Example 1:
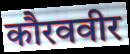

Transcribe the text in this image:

कौरववीर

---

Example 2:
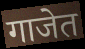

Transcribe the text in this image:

गाजेत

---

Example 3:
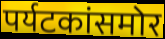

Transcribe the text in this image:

पर्यटकांसमोर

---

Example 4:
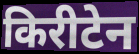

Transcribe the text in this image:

किरीटेन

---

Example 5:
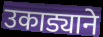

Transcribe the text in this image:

उकाड्याने